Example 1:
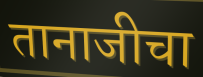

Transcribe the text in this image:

तानाजीचा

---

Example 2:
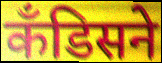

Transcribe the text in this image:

कँडिसने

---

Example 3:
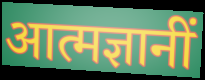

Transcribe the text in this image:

आत्मज्ञानीं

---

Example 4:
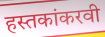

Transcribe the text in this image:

हस्तकांकरवी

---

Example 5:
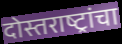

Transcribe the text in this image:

दोस्तराष्ट्रांचा